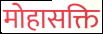
मोहासक्ति